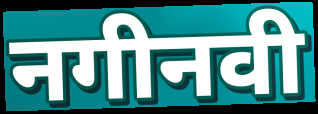
नगीनवी